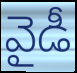
వైడీ